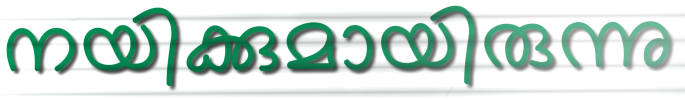
നയിക്കുമായിരുന്നു